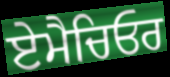
ਏਮੈਚਿਓਰ